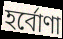
হর্বোণা